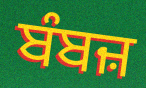
ਬੰਬਜ਼